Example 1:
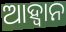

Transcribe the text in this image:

ଆହ୍ୱାନ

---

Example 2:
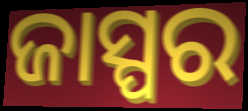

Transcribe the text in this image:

ଜାସ୍ପର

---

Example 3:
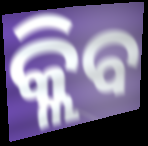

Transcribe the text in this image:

କ୍ଲିବ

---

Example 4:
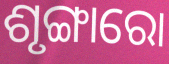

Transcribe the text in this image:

ଶୃଙ୍ଗାରୋ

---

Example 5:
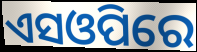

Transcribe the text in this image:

ଏସଓପିରେ